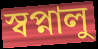
স্বপ্নালু